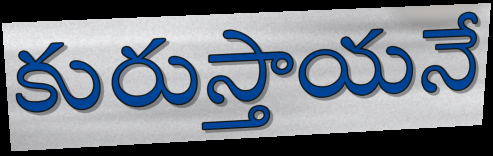
కురుస్తాయనే